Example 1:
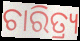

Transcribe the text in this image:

ଚାରିତ୍ର୍ୟ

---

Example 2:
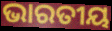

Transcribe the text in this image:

ଭାରତୀୟ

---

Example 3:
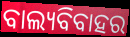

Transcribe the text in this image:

ବାଲ୍ୟବିବାହର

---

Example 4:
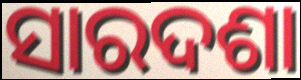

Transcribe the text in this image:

ସାରଦଶା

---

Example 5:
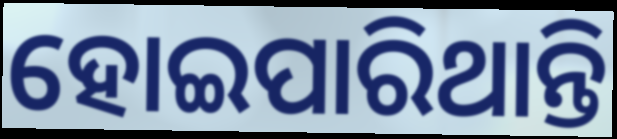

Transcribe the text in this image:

ହୋଇପାରିଥାନ୍ତି